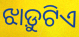
ଝାଡ଼ୁଟିଏ